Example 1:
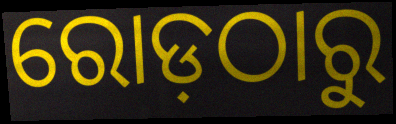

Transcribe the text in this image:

ରୋଡ଼ଠାରୁ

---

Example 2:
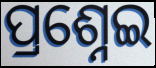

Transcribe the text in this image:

ପ୍ରଶ୍ନେଇ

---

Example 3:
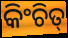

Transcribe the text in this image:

କିଂଚିତ୍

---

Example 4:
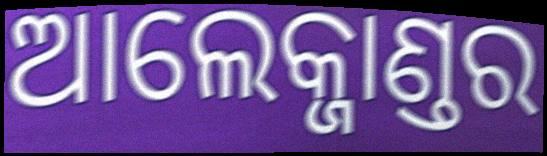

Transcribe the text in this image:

ଆଲେକ୍ଜାଣ୍ଡର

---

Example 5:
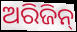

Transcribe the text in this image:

ଅରିଜିନ୍